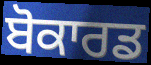
ਬੋਕਾਰਡ